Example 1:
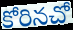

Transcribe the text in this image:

కోరినచో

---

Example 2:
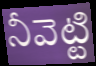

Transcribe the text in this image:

నీవెట్టి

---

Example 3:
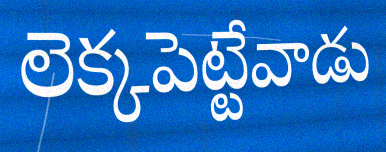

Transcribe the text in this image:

లెక్కపెట్టేవాడు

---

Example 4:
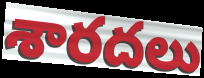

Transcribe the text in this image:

శారదలు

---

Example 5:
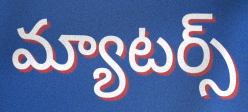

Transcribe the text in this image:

మ్యాటర్స్